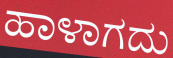
ಹಾಳಾಗದು